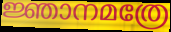
ജ്ഞാനമത്രേ